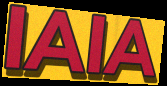
IAIA